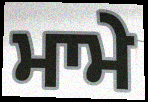
ਮਾਮੇ